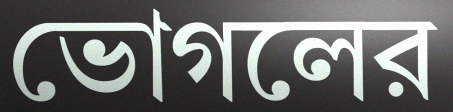
ভোগলের